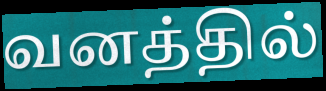
வனத்தில்